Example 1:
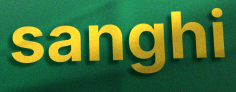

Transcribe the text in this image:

sanghi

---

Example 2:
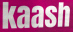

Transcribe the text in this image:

kaash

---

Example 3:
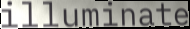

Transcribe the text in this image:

illuminate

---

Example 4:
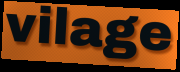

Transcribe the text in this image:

vilage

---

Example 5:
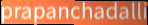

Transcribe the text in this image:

prapanchadalli